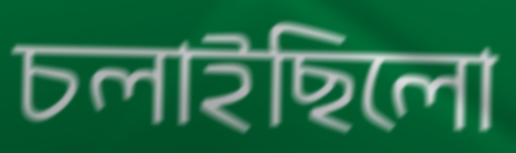
চলাইছিলো